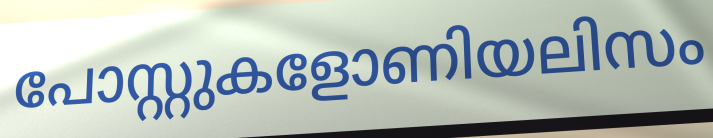
പോസ്റ്റുകളോണിയലിസം